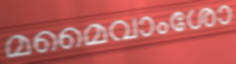
മമൈവാംശോ